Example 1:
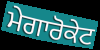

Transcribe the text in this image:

ਮੇਗਾਰੋਕੇਟ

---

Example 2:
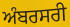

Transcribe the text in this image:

ਅੰਬਰਸਰੀ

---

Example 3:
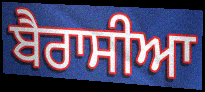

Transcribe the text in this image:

ਬੈਰਾਸੀਆ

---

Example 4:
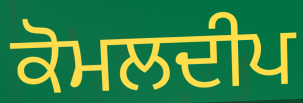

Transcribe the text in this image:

ਕੋਮਲਦੀਪ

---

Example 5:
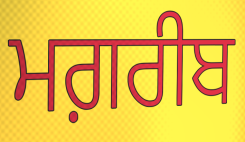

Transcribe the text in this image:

ਮਗ਼ਰੀਬ